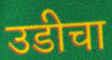
उडीचा